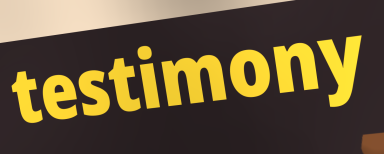
testimony